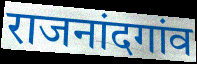
राजनांदगांव